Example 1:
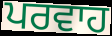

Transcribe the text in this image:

ਪਰਵਾਹ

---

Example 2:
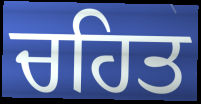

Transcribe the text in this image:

ਚਹਿਤ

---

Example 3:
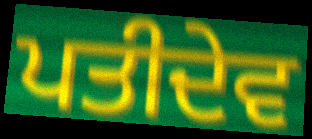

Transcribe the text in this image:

ਪਤੀਦੇਵ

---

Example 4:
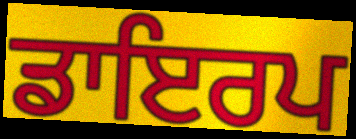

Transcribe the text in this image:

ਡਾਇਰਪ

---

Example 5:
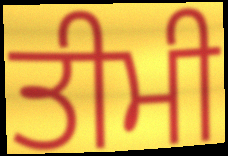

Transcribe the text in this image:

ਤੀਮੀ